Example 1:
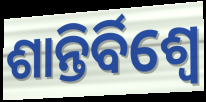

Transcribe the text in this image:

ଶାନ୍ତିର୍ବିଶ୍ୱେ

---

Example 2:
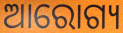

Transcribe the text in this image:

ଆରୋଗ୍ଯ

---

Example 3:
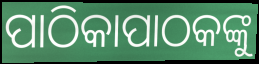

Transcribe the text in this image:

ପାଠିକାପାଠକଙ୍କୁ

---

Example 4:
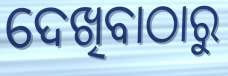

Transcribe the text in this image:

ଦେଖିବାଠାରୁ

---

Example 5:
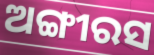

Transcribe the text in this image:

ଅଙ୍ଗୀରସ